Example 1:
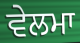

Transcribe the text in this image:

ਵੇਲਮਾ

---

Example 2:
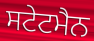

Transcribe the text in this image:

ਸਟੇਟਮੈਨ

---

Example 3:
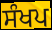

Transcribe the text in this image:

ਸੰਖਪ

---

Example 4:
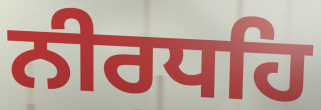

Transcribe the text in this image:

ਨੀਰਧਹਿ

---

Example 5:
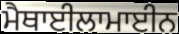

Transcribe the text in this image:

ਮੈਥਾਈਲਾਮਾਈਨ